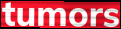
tumors